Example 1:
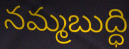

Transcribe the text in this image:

నమ్మబుద్ధి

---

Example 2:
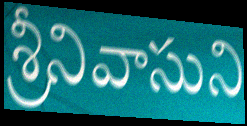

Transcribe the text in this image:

శ్రీనివాసుని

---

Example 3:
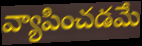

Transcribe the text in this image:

వ్యాపించడమే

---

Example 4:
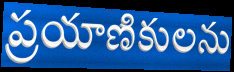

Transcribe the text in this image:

ప్రయాణికులను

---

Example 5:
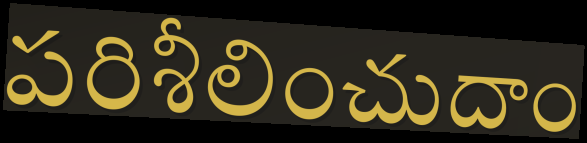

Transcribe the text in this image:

పరిశీలించుదాం